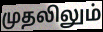
முதலிலும்